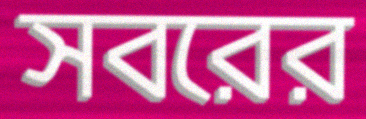
সবরের